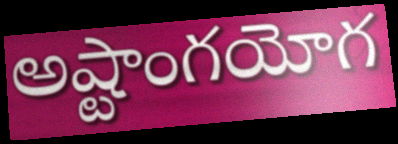
అష్టాంగయోగ